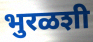
भुरळशी